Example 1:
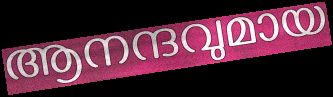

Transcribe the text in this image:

ആനന്ദവുമായ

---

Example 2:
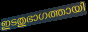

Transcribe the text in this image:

ഇടതുഭാഗത്തായി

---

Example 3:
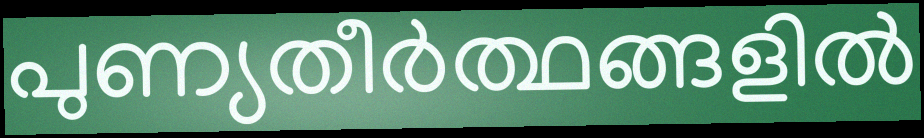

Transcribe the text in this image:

പുണ്യതീർത്ഥങ്ങളിൽ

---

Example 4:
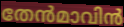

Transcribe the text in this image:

തേൻമാവിൻ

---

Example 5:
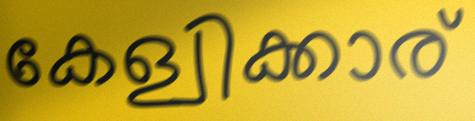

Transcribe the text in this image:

കേള്വിക്കാര്